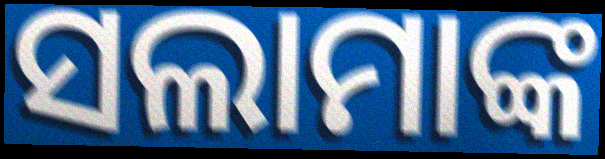
ସଲାମାଙ୍କ